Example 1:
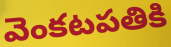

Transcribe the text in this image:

వెంకటపతికి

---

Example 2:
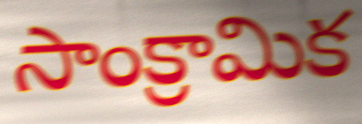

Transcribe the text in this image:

సాంక్రామిక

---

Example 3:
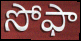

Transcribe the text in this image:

సోఫా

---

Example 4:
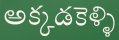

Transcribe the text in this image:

అక్కడకెళ్ళి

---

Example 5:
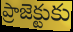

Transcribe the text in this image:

ప్రాజెక్టుకు